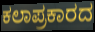
ಕಲಾಪ್ರಕಾರದ